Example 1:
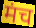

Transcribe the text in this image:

मंच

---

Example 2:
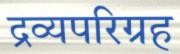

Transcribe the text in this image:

द्रव्यपरिग्रह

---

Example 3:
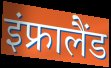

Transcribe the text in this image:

इंफ्रालैंड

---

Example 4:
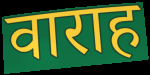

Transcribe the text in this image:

वाराह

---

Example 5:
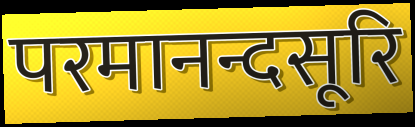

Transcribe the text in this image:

परमानन्दसूरि